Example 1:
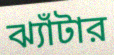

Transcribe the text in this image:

ঝ্যাঁটার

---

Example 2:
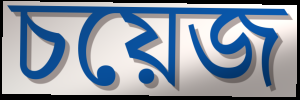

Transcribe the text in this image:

চয়েজ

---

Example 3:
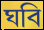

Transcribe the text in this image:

ঘবি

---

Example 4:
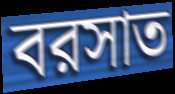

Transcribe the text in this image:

বরসাত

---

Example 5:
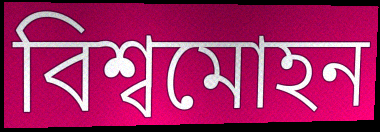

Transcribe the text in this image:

বিশ্বমোহন